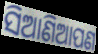
ସିଆଣିଆପଣ